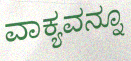
ವಾಕ್ಯವನ್ನೂ